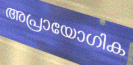
അപ്രായോഗിക